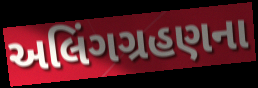
અલિંગગ્રહણના